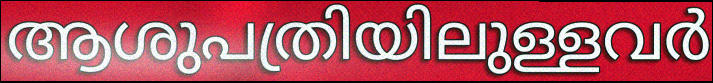
ആശുപത്രിയിലുള്ളവർ